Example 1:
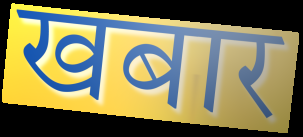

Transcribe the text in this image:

खबार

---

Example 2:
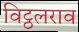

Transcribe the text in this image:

विट्ठलराव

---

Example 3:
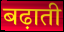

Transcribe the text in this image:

बढ़ाती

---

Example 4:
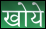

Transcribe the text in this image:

खोये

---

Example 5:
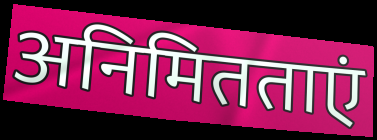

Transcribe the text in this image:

अनिमितताएं